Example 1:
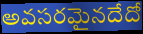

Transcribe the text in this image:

అవసరమైనదేదో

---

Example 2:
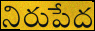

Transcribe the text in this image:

నిరుపేద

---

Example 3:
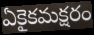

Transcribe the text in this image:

ఏకైకమక్షరం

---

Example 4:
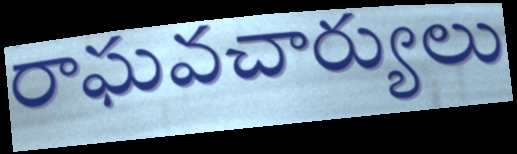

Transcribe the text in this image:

రాఘవచార్యులు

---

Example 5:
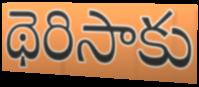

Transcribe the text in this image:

థెరిసాకు